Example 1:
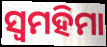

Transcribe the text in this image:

ସ୍ୱମହିମା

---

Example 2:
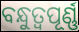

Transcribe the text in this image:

ବନ୍ଧୁତ୍ଵପୂର୍ଣ୍ଣ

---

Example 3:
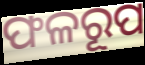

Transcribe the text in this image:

ଫଳରୂପ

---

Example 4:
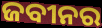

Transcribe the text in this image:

ଜବୀନର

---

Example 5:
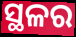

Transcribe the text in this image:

ସ୍ଥଳର